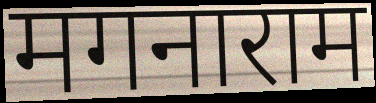
मगनाराम